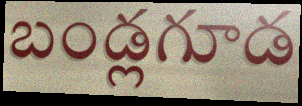
బండ్లగూడ